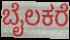
ಬೈಲಕರೆ